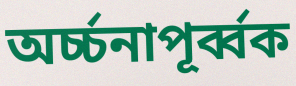
অর্চ্চনাপূর্ব্বক